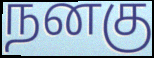
நனகு